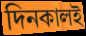
দিনকালই